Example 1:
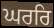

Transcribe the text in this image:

ਘਰਰਿ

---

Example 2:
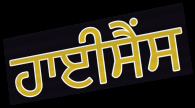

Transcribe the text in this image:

ਹਾਈਸੈਂਸ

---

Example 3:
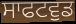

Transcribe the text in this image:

ਸਾਫਟਵੁਡ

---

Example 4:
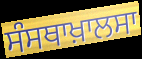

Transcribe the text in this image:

ਸੰਸਥਾਖ਼ਾਲਸਾ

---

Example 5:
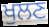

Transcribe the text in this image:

ਖੁਲਣ